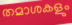
തമാശകളും